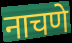
नाचणे